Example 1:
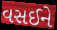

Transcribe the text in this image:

વસઈને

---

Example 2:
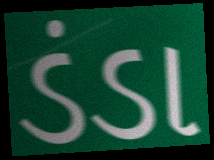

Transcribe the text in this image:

ડંડા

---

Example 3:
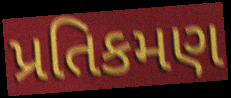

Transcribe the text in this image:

પ્રતિકમણ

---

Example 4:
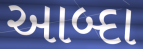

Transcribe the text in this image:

આબ્દા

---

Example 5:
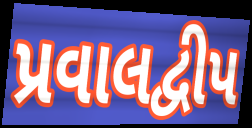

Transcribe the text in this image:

પ્રવાલદ્વીપ